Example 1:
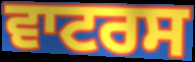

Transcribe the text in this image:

ਵਾਟਰਸ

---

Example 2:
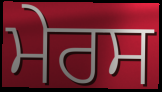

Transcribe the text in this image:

ਮੇਰਸ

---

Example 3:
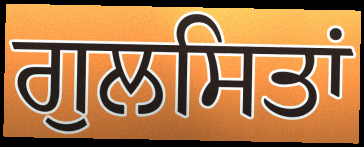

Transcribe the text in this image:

ਗੁਲਸਿਤਾਂ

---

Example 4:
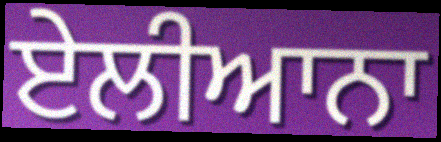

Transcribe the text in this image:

ਏਲੀਆਨਾ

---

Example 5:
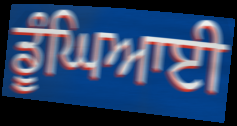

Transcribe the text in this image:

ਡੂੰਘਿਆਈ